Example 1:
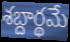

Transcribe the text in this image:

శబ్దార్థమే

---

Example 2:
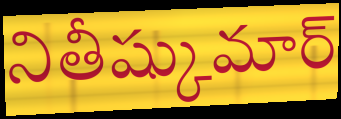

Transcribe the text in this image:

నితీష్కుమార్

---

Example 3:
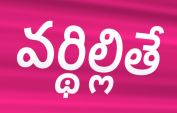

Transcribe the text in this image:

వర్థిల్లితే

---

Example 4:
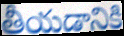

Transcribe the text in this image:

తీయడానికి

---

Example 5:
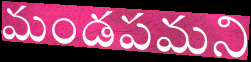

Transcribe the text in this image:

మండపమని